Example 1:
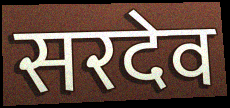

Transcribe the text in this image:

सरदेव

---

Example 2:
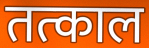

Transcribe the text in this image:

तत्‍काल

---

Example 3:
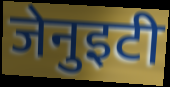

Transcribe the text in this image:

जेनुइटी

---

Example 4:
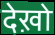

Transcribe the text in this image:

देख़ो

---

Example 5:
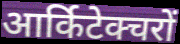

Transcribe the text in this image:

आर्किटेक्चरों